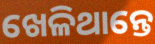
ଖେଳିଥାନ୍ତେ